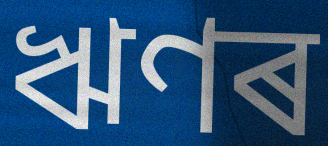
ঋণৰ